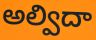
అల్విదా